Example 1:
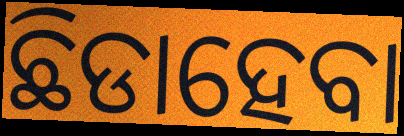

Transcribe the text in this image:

ଛିଡାହେବା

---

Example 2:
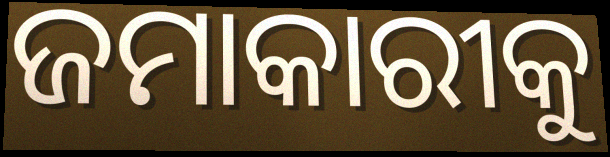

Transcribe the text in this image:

ଜମାକାରୀକୁ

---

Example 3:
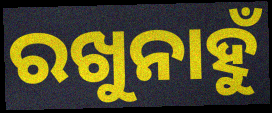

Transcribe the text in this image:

ରଖୁନାହୁଁ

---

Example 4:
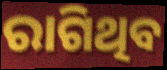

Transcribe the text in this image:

ରାଗିଥିବ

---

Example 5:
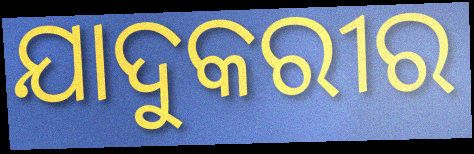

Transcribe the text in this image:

ଯାଦୁକରୀର